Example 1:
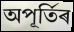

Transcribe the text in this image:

অপূৰ্তিৰ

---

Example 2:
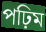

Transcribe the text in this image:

পঢ়িম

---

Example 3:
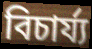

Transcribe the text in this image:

বিচাৰ্য্য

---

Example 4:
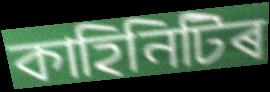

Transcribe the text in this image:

কাহিনিটিৰ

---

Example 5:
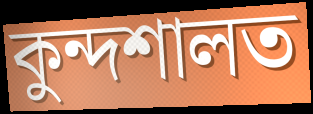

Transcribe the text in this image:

কুন্দশালত